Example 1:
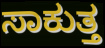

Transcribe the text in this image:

ಸಾಕುತ್ತ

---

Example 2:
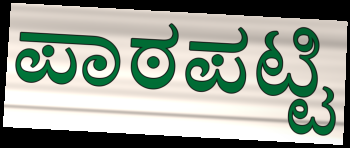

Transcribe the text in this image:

ಪಾಠಪಟ್ಟಿ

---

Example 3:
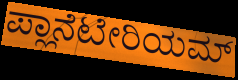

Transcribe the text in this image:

ಪ್ಲಾನೆಟೇರಿಯಮ್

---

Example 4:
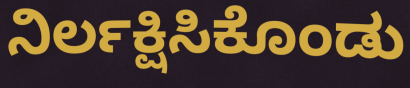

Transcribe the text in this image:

ನಿರ್ಲಕ್ಷಿಸಿಕೊಂಡು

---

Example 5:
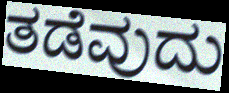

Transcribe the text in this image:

ತಡೆವುದು